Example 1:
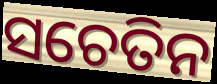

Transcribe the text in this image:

ସଚେତିନ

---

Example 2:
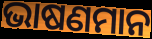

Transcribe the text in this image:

ଭାଷଣମାନ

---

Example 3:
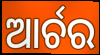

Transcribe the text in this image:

ଆର୍ଚର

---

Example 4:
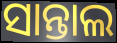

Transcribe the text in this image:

ସାନ୍ତାଲ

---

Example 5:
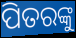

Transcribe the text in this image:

ପିତରଙ୍କୁ